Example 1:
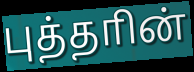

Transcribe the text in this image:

புத்தரின்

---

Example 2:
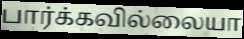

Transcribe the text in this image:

பார்க்கவில்லையா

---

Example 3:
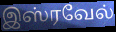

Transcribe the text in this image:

இஸ்ரவேல்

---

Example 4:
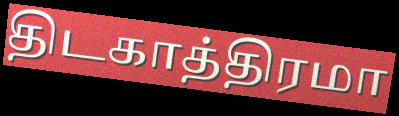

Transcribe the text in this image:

திடகாத்திரமா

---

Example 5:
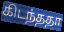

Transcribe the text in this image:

கிடந்ததா